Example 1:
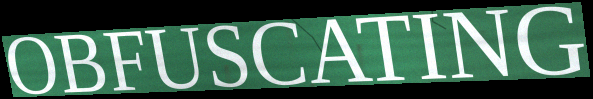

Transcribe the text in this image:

OBFUSCATING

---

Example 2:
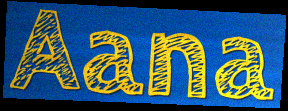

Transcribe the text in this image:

Aana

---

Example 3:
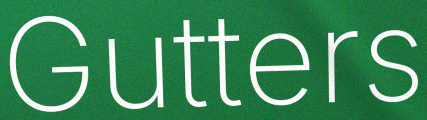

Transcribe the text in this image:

Gutters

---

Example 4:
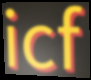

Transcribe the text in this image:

icf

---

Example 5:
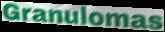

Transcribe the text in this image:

Granulomas